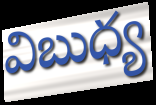
విబుధ్య